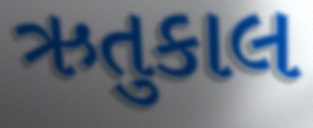
ઋતુકાલ